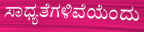
ಸಾಧ್ಯತೆಗಳಿವೆಯೆಂದು